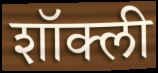
शॉक्ली